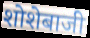
शोशेबाजी